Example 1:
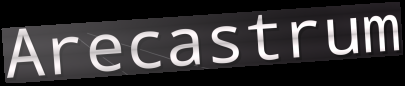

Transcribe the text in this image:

Arecastrum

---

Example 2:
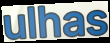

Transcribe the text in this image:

ulhas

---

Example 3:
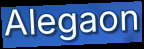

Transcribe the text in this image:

Alegaon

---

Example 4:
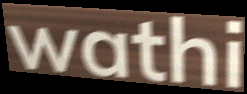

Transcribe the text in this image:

wathi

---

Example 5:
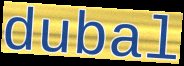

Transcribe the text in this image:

dubal